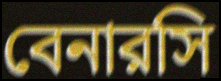
বেনারসি